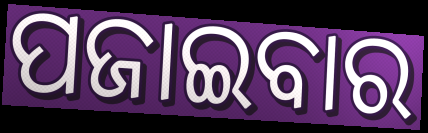
ପଜାଇବାର